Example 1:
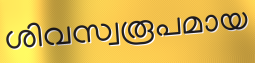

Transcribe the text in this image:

ശിവസ്വരൂപമായ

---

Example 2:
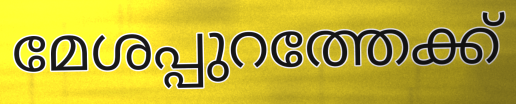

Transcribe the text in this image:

മേശപ്പുറത്തേക്ക്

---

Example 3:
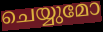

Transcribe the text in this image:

ചെയ്യുമോ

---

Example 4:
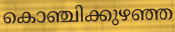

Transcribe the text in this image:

കൊഞ്ചിക്കുഴഞ്ഞ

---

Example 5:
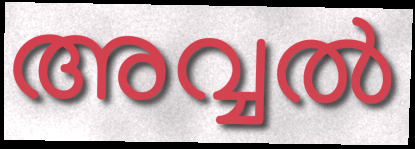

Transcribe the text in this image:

അവ്വൽ